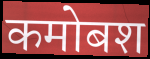
कमोबश